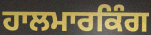
ਹਾਲਮਾਰਕਿੰਗ